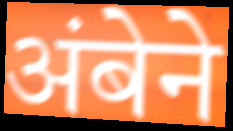
अंबेने